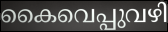
കൈവെപ്പുവഴി